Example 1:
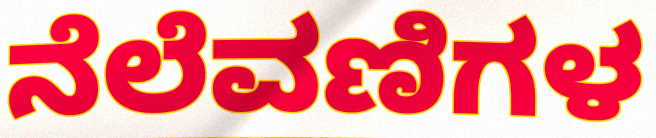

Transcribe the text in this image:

ನೆಲೆವಣಿಗಳ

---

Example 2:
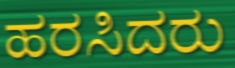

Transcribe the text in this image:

ಹರಸಿದರು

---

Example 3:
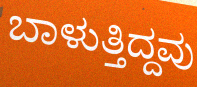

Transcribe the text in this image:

ಬಾಳುತ್ತಿದ್ದವು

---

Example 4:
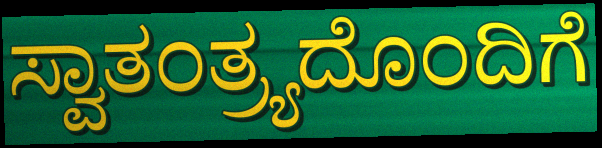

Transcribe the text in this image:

ಸ್ವಾತಂತ್ರ್ಯದೊಂದಿಗೆ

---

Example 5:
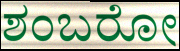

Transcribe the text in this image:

ಶಂಬರೋ